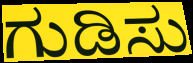
ಗುಡಿಸು